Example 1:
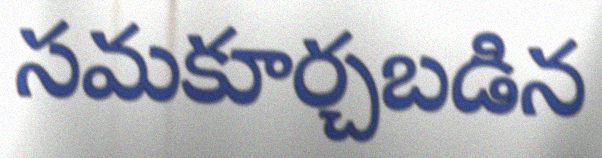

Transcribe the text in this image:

సమకూర్చబడిన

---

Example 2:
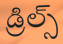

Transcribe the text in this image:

డ్రిల్స్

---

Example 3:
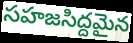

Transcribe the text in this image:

సహజసిద్దమైన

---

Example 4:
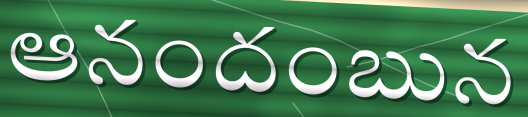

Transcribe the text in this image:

ఆనందంబున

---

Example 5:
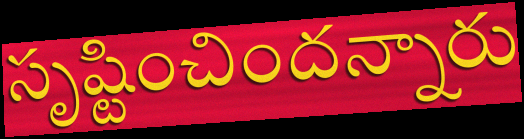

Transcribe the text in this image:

సృష్టించిందన్నారు